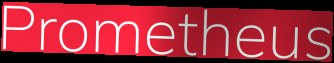
Prometheus